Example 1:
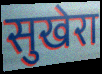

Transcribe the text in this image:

सुखेरा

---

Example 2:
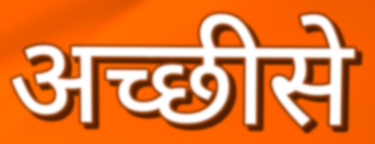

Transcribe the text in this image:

अच्छीसे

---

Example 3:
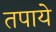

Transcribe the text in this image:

तपाये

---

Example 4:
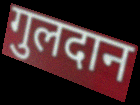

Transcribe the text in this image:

गुलदान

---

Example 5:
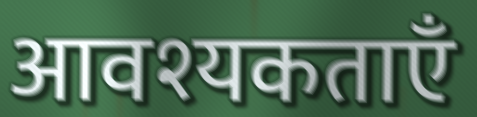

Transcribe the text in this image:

आवश्यकताएँ